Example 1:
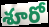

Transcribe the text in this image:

శూరో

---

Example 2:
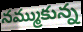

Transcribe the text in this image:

నమ్ముకున్న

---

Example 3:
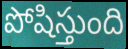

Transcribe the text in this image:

పోషిస్తుంది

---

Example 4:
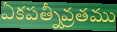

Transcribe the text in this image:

ఏకపత్నీవ్రతము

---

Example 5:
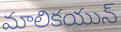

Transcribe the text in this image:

మాలికయున్